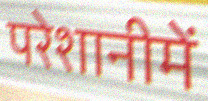
परेशानीमें